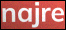
najre